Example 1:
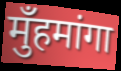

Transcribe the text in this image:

मुँहमांगा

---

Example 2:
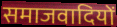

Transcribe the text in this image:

समाजवादियों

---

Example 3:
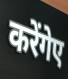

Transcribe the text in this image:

करेंगेए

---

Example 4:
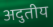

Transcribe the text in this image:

अदुतीय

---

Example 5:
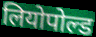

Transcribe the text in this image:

लियोपोल्ड